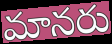
మానరు